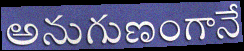
అనుగుణంగానే